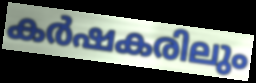
കർഷകരിലും